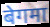
बेगमा